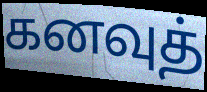
கனவுத்